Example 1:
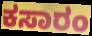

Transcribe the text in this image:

ಕಸಾರಂ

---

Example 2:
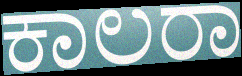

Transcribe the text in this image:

ಕಾಲರಾ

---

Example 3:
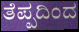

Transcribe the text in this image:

ತೆಪ್ಪದಿಂದ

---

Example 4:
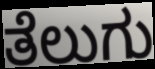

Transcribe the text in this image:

ತೆಲುಗು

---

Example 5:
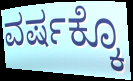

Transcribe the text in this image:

ವರ್ಷಕ್ಕೊ